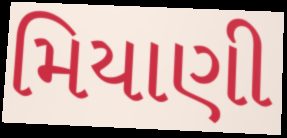
મિયાણી